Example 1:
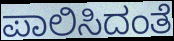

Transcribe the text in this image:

ಪಾಲಿಸಿದಂತೆ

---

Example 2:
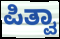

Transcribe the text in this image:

ಪಿತ್ವಾ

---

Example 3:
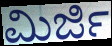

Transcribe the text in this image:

ಮಿರ್ಜಿ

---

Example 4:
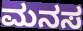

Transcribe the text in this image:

ಮನಸ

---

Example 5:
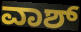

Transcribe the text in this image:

ವಾಶ್